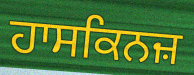
ਹਾਸਕਿਨਜ਼